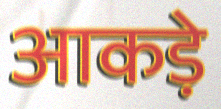
आकड़े